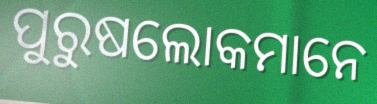
ପୁରୁଷଲୋକମାନେ